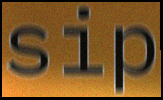
sip